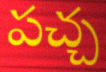
పచ్చ